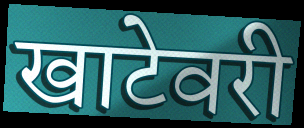
खाटेवरी